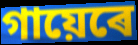
গায়েৰে